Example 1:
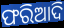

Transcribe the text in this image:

ଫରିଆଦି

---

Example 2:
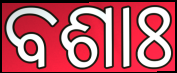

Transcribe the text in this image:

ବଶାଃ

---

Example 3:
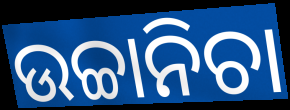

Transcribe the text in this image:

ଉଚ୍ଚାନିଚା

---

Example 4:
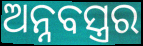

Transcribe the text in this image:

ଅନ୍ନବସ୍ତ୍ରର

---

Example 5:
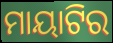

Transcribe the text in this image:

ମାୟାଟିର